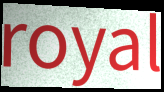
royal